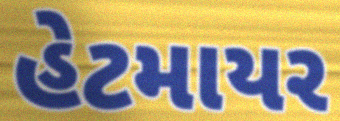
હેટમાયર